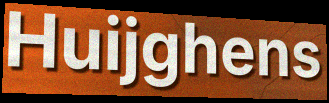
Huijghens